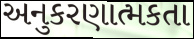
અનુકરણાત્મકતા